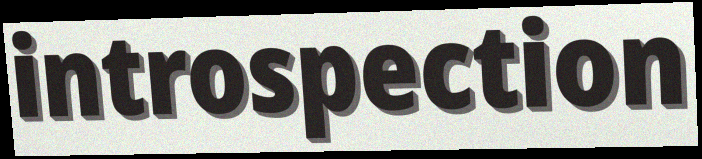
introspection